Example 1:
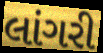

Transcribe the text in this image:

લાંગરી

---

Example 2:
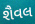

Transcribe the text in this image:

શૈવલ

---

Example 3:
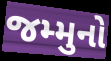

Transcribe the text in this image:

જમ્મુનો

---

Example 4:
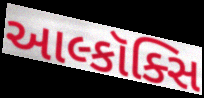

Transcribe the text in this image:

આલ્કૉક્સિ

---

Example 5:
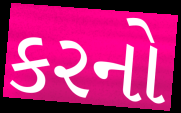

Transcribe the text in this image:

કરનો